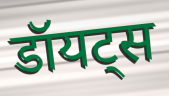
डॉयट्स